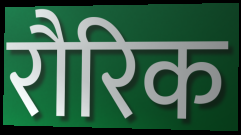
रौरिक